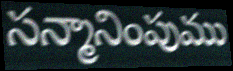
సన్మానింపుము